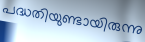
പദ്ധതിയുണ്ടായിരുന്നു